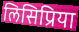
लिसिप्रिया